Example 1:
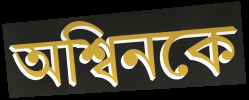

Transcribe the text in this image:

অশ্বিনকে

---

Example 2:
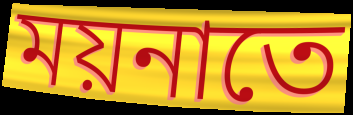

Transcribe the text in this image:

ময়নাতে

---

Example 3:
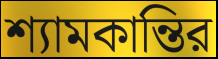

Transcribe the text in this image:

শ্যামকান্তির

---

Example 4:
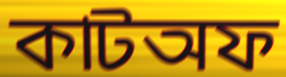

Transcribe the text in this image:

কাটঅফ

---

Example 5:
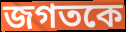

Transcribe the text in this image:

জগতকে